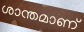
ശാന്തമാണ്